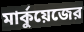
মার্কুয়েজের